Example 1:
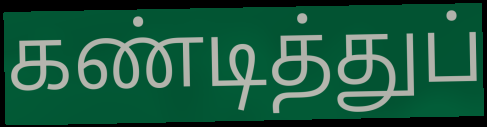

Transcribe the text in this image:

கண்டித்துப்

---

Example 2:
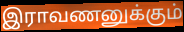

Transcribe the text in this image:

இராவணனுக்கும்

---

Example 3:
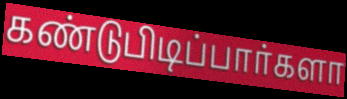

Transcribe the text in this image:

கண்டுபிடிப்பார்களா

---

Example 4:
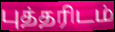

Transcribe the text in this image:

புத்தரிடம்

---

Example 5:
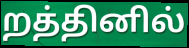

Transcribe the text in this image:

றத்தினில்